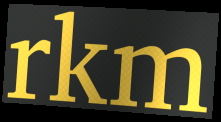
rkm